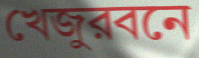
খেজুরবনে